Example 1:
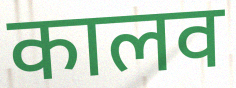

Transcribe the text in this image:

कालव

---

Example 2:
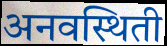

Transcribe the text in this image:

अनवस्थिती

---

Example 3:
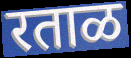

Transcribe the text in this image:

रताळ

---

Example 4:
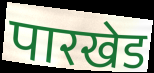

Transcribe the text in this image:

पारखेड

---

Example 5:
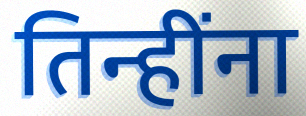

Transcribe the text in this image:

तिन्हींना